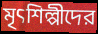
মৃৎশিল্পীদের